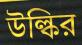
উল্কির